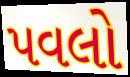
પવલો